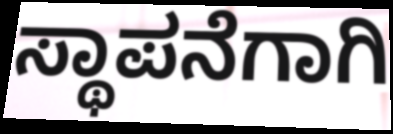
ಸ್ಥಾಪನೆಗಾಗಿ